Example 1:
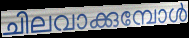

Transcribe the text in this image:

ചിലവാക്കുമ്പോൾ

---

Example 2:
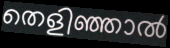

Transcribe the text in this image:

തെളിഞ്ഞാൽ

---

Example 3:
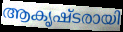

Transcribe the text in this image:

ആകൃഷ്ടരായി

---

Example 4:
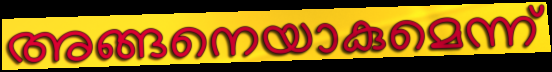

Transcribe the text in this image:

അങ്ങനെയാകുമെന്ന്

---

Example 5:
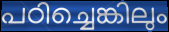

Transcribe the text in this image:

പഠിച്ചെങ്കിലും